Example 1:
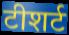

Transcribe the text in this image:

टीशर्ट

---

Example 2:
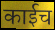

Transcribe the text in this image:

काईच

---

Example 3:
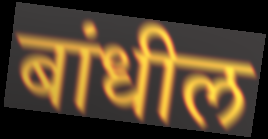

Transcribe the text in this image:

बांधील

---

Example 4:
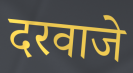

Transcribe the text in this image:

दरवाजे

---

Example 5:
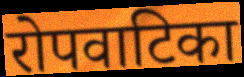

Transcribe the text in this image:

रोपवाटिका